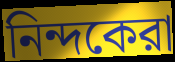
নিন্দকেরা